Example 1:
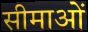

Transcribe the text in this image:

सीमाओं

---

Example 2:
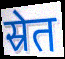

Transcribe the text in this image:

स्रेत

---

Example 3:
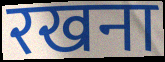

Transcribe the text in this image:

रखना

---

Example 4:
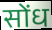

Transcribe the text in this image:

सोंध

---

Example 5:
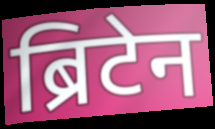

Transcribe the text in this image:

ब्रिटेन